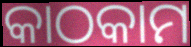
କାଠକାମ